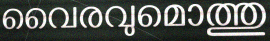
വൈരവുമൊത്തു